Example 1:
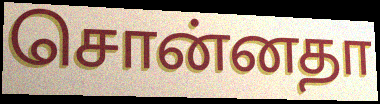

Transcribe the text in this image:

சொன்னதா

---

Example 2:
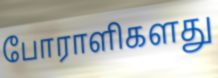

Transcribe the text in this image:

போராளிகளது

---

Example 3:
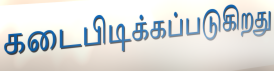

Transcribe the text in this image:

கடைபிடிக்கப்படுகிறது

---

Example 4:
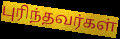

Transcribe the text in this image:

புரிந்தவர்கள்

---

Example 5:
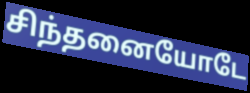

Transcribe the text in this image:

சிந்தனையோடே